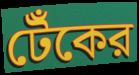
টেঁকের